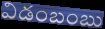
విడంబంబు